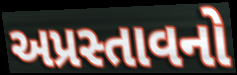
અપ્રસ્તાવનો